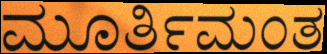
ಮೂರ್ತಿಮಂತ